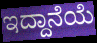
ಇದ್ದಾನೆಯೆ